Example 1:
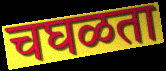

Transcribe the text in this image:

चघळता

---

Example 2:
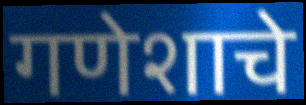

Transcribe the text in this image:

गणेशाचे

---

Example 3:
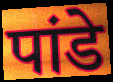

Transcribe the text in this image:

पांडे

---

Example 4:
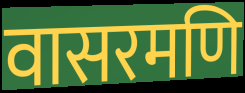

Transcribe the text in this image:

वासरमणि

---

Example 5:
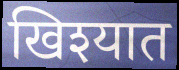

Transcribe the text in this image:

खिश्यात